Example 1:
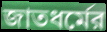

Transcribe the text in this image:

জাতধর্মের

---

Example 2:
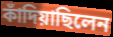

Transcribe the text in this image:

কাঁদিয়াছিলেন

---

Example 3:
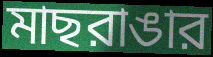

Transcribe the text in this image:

মাছরাঙার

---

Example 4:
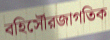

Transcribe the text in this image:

বহির্সৌরজাগতিক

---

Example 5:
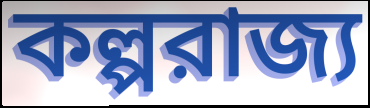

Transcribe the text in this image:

কল্পরাজ্য